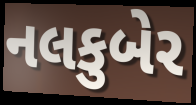
નલકુબેર